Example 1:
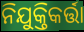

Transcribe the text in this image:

ନିଯୁକ୍ତିକର୍ତ୍ତା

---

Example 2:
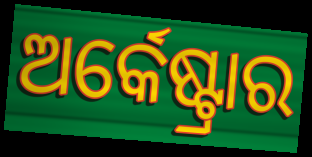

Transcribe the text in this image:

ଅର୍କେଷ୍ଟ୍ରାର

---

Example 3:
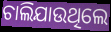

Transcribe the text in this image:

ଚାଲିଯାଉଥିଲେ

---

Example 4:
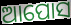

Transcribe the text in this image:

ଆପୋସ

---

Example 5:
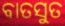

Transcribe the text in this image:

ବାତସୁତ